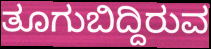
ತೂಗುಬಿದ್ದಿರುವ